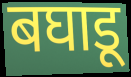
बघाडू